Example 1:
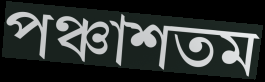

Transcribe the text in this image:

পঞ্চাশতম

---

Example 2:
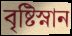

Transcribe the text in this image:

বৃষ্টিস্নান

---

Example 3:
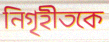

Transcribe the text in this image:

নিগৃহীতকে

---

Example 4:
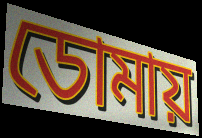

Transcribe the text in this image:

ডোমায়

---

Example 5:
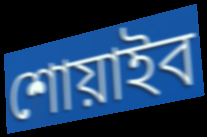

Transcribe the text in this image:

শোয়াইব